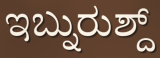
ಇಬ್ನುರುಶ್ದ್